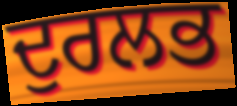
ਦੁਰਲਭ